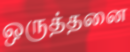
ஒருத்தனை